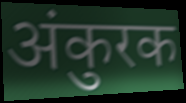
अंकुरक